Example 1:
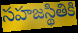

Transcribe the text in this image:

సహజస్థితికి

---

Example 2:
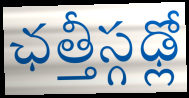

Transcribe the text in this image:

ఛత్తీస్గఢ్లో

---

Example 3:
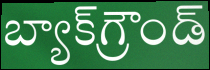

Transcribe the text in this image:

బ్యాక్‌గ్రౌండ్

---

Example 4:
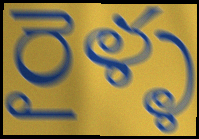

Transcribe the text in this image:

రైళ్ళ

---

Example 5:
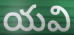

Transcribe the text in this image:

యవి